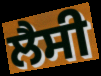
ਲੈਸੀ